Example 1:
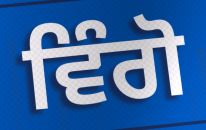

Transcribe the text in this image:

ਵਿੰਗੋ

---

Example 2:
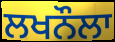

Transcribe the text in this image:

ਲਖਨੌਲਾ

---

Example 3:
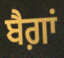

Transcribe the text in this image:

ਬੈਗ਼ਾਂ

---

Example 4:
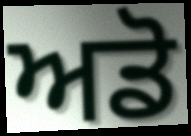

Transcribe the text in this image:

ਅਡੋ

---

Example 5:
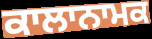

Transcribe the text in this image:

ਕਾਲਾਨਾਮਕ